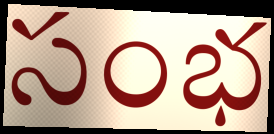
సంభ